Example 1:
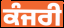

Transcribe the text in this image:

ਕੰਜਰੀ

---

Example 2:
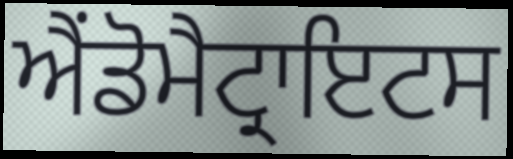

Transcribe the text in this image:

ਐਂਡੋਮੈਟ੍ਰਾਇਟਸ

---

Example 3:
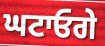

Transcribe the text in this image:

ਘਟਾਓਗੇ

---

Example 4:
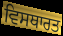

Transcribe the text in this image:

ਵਿਸਥਾਰਤ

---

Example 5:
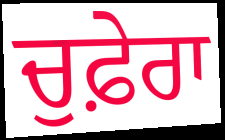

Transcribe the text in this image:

ਚੁਫ਼ੇਰਾ